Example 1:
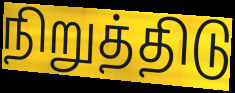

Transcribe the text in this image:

நிறுத்திடு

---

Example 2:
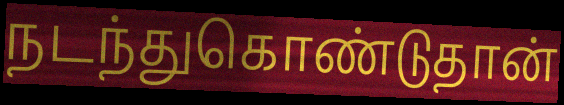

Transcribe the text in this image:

நடந்துகொண்டுதான்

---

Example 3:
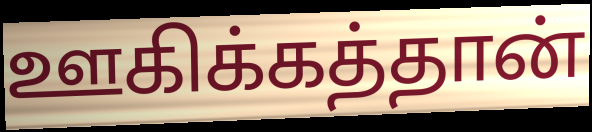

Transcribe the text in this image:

ஊகிக்கத்தான்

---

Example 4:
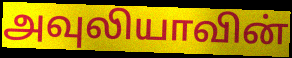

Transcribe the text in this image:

அவுலியாவின்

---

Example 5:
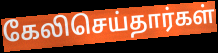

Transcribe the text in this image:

கேலிசெய்தார்கள்